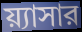
য়্যাসার